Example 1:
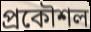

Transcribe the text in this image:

প্ৰকৌশল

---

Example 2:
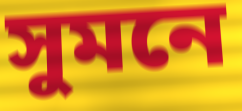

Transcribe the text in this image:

সুমনে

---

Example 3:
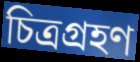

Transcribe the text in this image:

চিত্ৰগ্ৰহণ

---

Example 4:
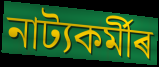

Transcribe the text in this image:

নাট্যকৰ্মীৰ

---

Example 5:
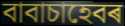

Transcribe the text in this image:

বাবাচাহেবৰ